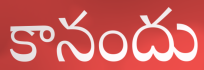
కానందు